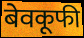
बेवकूफी